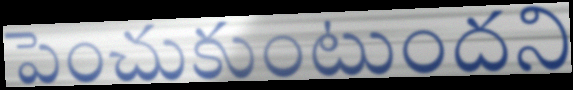
పెంచుకుంటుందని